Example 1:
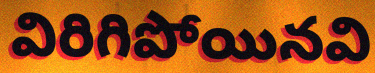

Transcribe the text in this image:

విరిగిపోయినవి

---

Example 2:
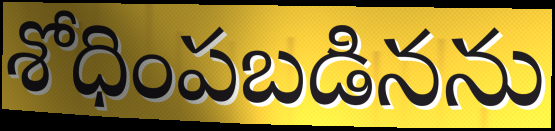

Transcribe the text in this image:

శోధింపబడినను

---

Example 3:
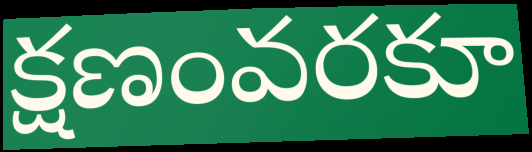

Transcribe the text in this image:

క్షణంవరకూ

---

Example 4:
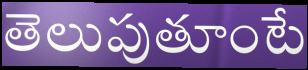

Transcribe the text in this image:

తెలుపుతూంటే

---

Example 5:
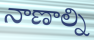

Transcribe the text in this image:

నాణాల్ని